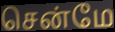
சென்மே